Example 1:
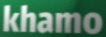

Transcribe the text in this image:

khamo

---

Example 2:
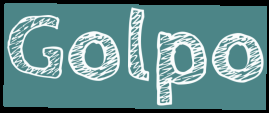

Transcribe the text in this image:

Golpo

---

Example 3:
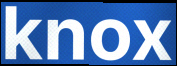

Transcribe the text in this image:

knox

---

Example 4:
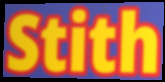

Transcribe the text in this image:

Stith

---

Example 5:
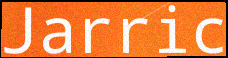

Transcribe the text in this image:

Jarric